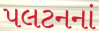
પલટનનાં